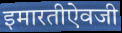
इमारतीऐवजी